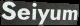
Seiyum